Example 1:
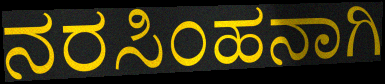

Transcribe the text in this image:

ನರಸಿಂಹನಾಗಿ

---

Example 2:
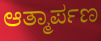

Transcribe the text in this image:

ಆತ್ಮಾರ್ಪಣ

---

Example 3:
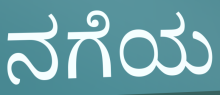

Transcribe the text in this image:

ನಗೆಯ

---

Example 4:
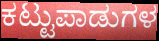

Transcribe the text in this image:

ಕಟ್ಟುಪಾಡುಗಳ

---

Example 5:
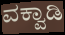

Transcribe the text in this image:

ವಕ್ವಾಡಿ